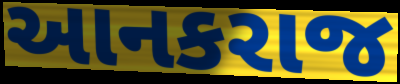
આનકરાજ